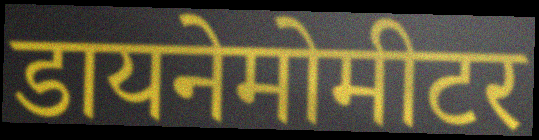
डायनेमोमीटर